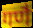
गणै